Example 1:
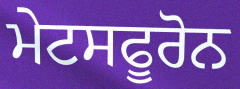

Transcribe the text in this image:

ਮੇਟਸਫੂਰੋਨ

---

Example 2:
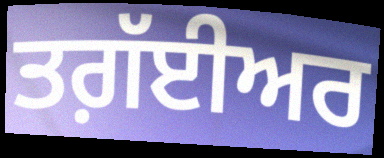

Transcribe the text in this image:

ਤਗ਼ੱਈਅਰ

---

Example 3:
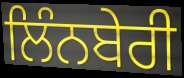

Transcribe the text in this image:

ਲਿੰਨਬੇਰੀ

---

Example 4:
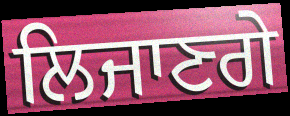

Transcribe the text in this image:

ਲਿਜਾਣਗੇ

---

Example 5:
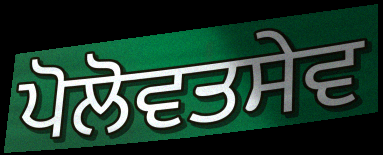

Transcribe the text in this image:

ਪੋਲੋਵਤਸੇਵ